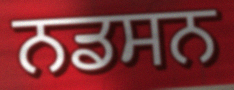
ਨਡਸਨ